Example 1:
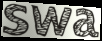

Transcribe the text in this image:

swa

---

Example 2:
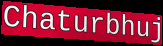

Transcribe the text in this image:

Chaturbhuj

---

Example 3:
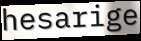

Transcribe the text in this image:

hesarige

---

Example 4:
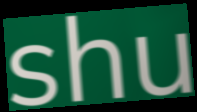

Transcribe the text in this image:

shu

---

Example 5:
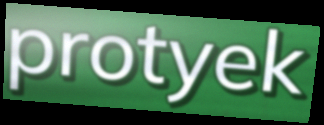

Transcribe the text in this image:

protyek